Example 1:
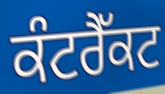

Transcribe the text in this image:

ਕੰਟਰੈੱਕਟ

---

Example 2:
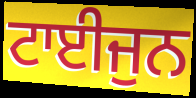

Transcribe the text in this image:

ਟਾਈਜੁਨ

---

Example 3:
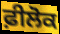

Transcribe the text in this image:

ਫ਼ੀਲੋਕ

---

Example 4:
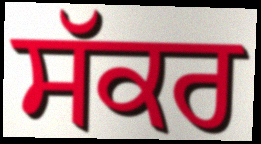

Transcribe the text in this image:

ਸੱਕਰ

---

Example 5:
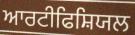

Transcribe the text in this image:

ਆਰਟੀਫਿਸ਼ਿਯਲ